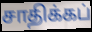
சாதிக்கப்